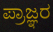
ಪ್ರಾಜ್ಞರ